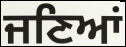
ਜਣਿਆਂ